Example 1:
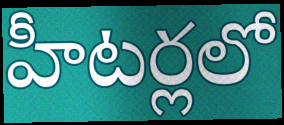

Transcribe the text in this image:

హీటర్లలో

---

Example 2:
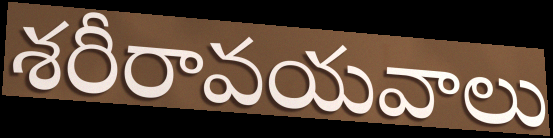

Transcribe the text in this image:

శరీరావయవాలు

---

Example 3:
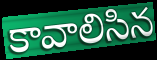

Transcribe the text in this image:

కావాలిసిన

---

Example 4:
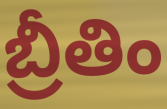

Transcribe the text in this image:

బ్రీతిం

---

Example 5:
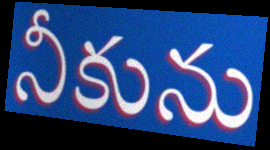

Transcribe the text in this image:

నీకును